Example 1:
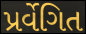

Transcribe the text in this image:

પ્રર્વેગિત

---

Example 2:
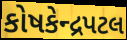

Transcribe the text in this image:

કોષકેન્દ્રપટલ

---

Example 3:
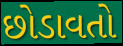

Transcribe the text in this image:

છોડાવતો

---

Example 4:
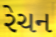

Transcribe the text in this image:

રેચન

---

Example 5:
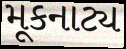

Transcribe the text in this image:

મૂકનાટ્ય